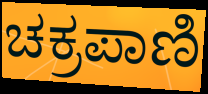
ಚಕ್ರಪಾಣಿ